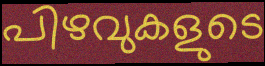
പിഴവുകളുടെ